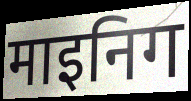
माइनिग